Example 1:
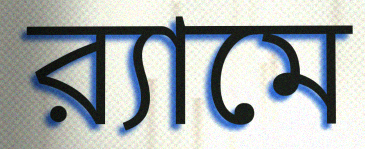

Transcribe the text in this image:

র‍্যামে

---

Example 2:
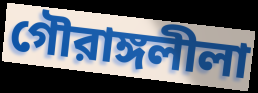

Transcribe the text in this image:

গৌরাঙ্গলীলা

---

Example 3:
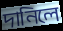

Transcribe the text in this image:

দানিলে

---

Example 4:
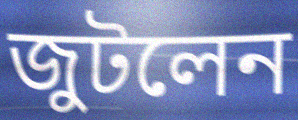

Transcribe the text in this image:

জুটলেন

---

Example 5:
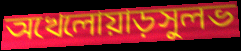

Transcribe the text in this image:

অখেলোয়াড়সুলভ